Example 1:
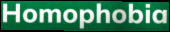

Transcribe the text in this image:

Homophobia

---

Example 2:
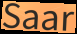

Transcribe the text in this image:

Saar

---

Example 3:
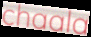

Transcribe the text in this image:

chaala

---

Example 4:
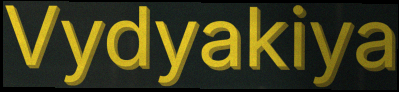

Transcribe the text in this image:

Vydyakiya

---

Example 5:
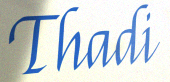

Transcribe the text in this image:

Thadi